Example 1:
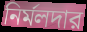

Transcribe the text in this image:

নির্মলদার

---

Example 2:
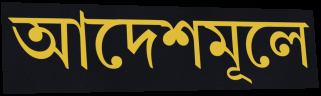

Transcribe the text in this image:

আদেশমূলে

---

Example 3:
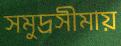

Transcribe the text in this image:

সমুদ্রসীমায়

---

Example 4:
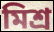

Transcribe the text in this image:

মিশ্র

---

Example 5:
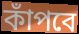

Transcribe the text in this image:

কাঁপবে